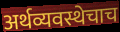
अर्थव्यवस्थेचाच